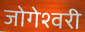
जोगेश्वरी